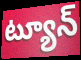
ట్యూన్